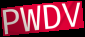
PWDV